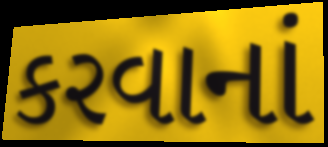
કરવાનાં